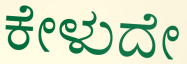
ಕೇಳುದೇ